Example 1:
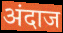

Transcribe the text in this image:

अंदाज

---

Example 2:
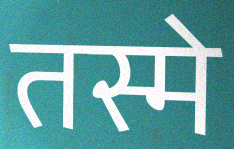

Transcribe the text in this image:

तस्मे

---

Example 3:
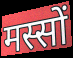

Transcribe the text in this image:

मस्सों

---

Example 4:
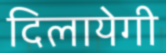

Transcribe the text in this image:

दिलायेगी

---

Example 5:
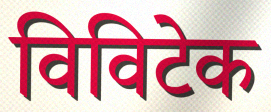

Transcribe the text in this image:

विविटेक